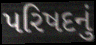
પરિષદનું